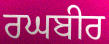
ਰਘਬੀਰ